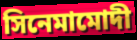
সিনেমামোদী